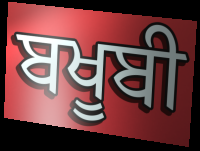
ਬਖੂਬੀ